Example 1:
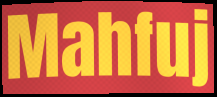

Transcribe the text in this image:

Mahfuj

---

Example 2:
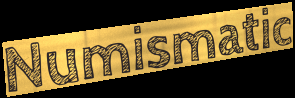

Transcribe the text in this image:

Numismatic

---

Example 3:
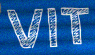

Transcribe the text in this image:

VIT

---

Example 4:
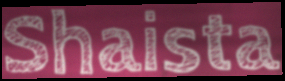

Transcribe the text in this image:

Shaista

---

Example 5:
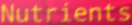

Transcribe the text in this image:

Nutrients